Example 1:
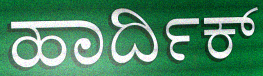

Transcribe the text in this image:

ಹಾರ್ದಿಕ್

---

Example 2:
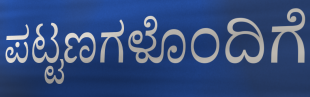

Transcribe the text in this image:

ಪಟ್ಟಣಗಳೊಂದಿಗೆ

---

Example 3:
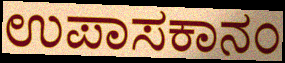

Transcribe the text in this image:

ಉಪಾಸಕಾನಂ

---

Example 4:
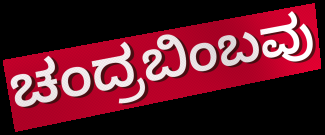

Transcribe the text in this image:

ಚಂದ್ರಬಿಂಬವು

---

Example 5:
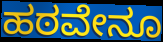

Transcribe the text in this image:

ಹಠವೇನೂ